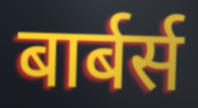
बार्बर्स